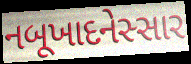
નબૂખાદનેસ્સાર